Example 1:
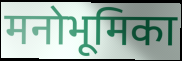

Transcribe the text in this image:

मनोभूमिका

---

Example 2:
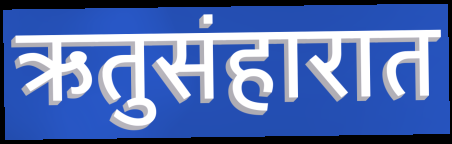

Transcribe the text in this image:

ऋतुसंहारात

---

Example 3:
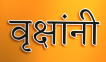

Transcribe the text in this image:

वृक्षांनी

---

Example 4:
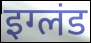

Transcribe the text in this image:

इग्लंड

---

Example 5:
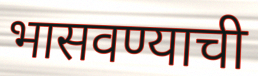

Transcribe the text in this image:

भासवण्याची